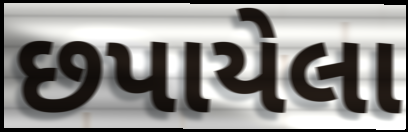
છપાયેલા